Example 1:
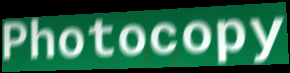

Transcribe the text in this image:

Photocopy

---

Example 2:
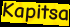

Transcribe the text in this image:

Kapitsa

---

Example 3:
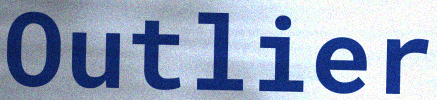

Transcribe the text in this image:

Outlier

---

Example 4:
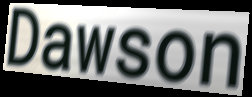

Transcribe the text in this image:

Dawson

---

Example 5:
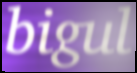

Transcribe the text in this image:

bigul